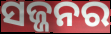
ସଜ୍ଜନର